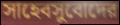
সাহেবসুবোদের